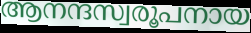
ആനന്ദസ്വരൂപനായ